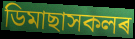
ডিমাছাসকলৰ